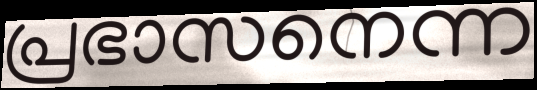
പ്രഭാസനെന്ന